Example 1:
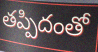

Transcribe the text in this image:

తప్పిదంతో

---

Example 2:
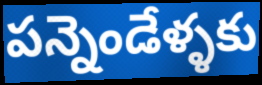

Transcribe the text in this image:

పన్నెండేళ్ళకు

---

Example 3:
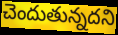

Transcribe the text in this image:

చెందుతున్నదని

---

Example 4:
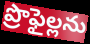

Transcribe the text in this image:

ప్రొఫైల్లను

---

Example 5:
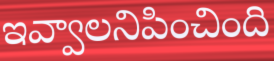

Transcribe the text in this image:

ఇవ్వాలనిపించింది